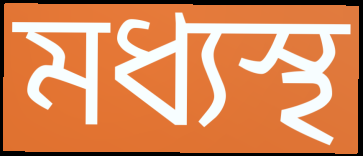
মধ্যস্থ